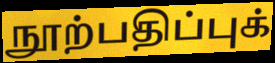
நூற்பதிப்புக்